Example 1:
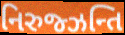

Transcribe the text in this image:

નિરુજ્ઝન્તિ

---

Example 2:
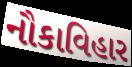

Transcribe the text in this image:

નૌકાવિહાર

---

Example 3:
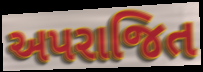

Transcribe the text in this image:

અપરાજિત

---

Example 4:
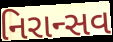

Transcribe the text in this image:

નિરાન્સવ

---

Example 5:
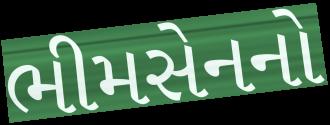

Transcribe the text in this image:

ભીમસેનનો